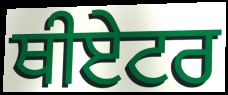
ਥੀਏਟਰ